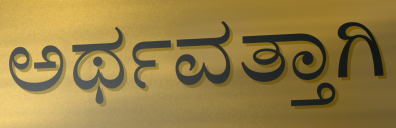
ಅರ್ಥವತ್ತಾಗಿ